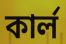
কাৰ্ল